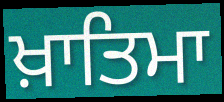
ਖ਼ਾਤਿਮਾ